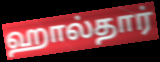
ஹால்தார்